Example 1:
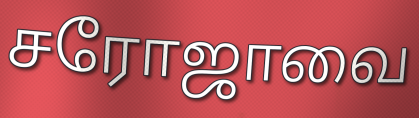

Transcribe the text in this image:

சரோஜாவை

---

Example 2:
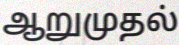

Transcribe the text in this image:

ஆறுமுதல்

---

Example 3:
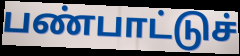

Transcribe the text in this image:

பண்பாட்டுச்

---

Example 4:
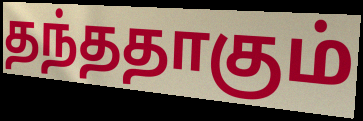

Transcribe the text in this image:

தந்ததாகும்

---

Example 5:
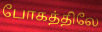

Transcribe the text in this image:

போகத்திலே